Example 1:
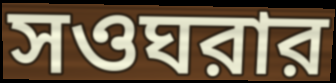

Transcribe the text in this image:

সওঘরার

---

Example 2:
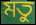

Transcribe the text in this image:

মতু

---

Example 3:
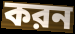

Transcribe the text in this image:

করন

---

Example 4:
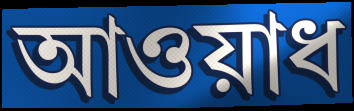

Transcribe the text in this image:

আওয়াধ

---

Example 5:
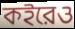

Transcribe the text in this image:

কইরেও